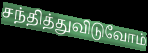
சந்தித்துவிடுவோம்